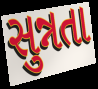
સુન્નતા